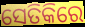
ସେତିକିରେ